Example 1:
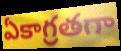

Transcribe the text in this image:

ఏకాగ్రతగా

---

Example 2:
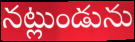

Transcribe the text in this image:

నట్లుండును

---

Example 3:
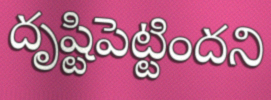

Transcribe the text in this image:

దృష్టిపెట్టిందని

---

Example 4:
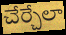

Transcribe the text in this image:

చేర్చేలా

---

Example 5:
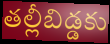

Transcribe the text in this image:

తల్లీబిడ్డకు